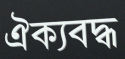
ঐক্যবদ্ধ